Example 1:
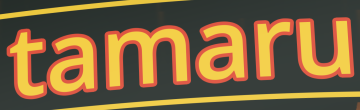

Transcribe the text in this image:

tamaru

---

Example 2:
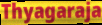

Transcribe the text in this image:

Thyagaraja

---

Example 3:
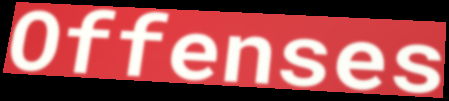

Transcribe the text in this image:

Offenses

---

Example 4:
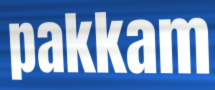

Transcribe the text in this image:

pakkam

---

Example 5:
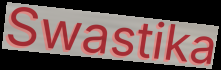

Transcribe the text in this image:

Swastika